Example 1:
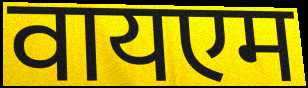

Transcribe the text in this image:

वायएम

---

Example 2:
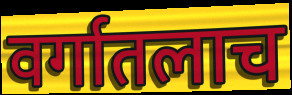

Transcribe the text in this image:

वर्गातलाच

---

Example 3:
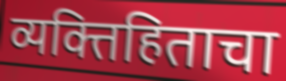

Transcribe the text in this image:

व्यक्तिहिताचा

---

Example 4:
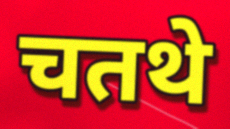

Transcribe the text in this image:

चतथे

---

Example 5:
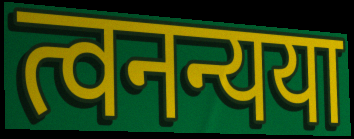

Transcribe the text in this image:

त्वनन्यया